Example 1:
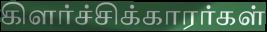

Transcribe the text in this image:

கிளர்ச்சிக்காரர்கள்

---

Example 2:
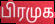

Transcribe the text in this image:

பிரமுக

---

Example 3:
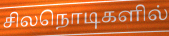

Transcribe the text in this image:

சிலநொடிகளில்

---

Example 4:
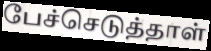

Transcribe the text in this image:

பேச்செடுத்தாள்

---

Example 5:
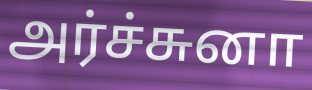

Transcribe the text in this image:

அர்ச்சுனா